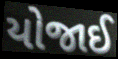
યોજાઈ